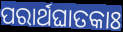
ପରାର୍ଥଘାତକାଃ